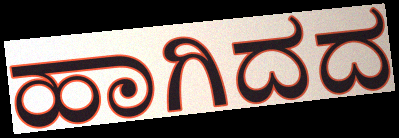
ಹಾಗಿದದ